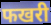
फखरी